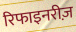
रिफाइनरीज़